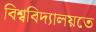
বিশ্ববিদ্যালয়তে